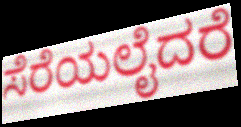
ಸೆರೆಯಲೈದರೆ